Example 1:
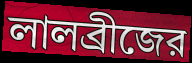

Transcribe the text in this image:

লালব্রীজের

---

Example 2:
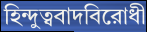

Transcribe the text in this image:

হিন্দুত্ববাদবিরোধী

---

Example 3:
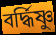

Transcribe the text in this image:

বর্দ্ধিষ্ণু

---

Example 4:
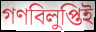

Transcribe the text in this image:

গণবিলুপ্তিই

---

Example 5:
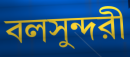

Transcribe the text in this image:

বলসুন্দরী